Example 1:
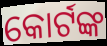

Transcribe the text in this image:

କୋର୍ଟଙ୍କ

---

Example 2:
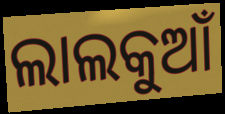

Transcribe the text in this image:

ଲାଲକୁଆଁ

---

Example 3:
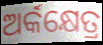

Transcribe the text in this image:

ଅର୍କକ୍ଷେତ୍ର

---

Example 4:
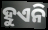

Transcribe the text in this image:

ହୁଏନି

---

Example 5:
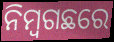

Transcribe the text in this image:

ନିମ୍ବଗଛରେ